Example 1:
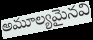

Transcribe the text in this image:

అమూల్యమైనవి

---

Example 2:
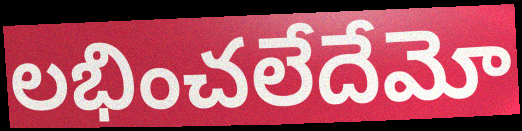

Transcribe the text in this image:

లభించలేదేమో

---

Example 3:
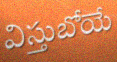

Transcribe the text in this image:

విస్తుబోయే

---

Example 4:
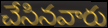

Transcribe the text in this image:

చేసినవారు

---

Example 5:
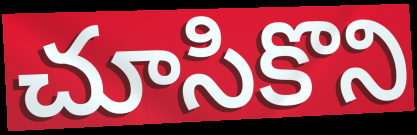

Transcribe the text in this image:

చూసికొని